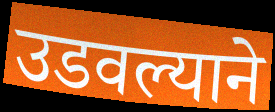
उडवल्याने